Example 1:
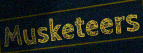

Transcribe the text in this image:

Musketeers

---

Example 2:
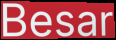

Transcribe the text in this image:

Besar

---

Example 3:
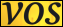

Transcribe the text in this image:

vos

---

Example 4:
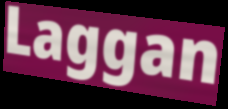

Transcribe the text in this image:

Laggan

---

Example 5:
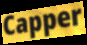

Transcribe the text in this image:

Capper